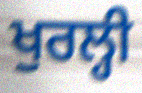
ਖੁਰਲ੍ਹੀ